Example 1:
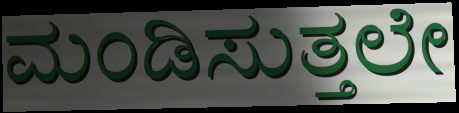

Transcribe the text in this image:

ಮಂಡಿಸುತ್ತಲೇ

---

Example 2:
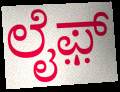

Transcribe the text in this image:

ಲೈಫ಼್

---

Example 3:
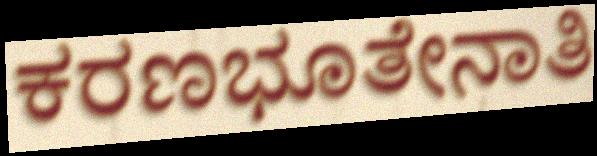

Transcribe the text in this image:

ಕರಣಭೂತೇನಾತಿ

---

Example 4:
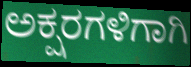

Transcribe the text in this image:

ಅಕ್ಷರಗಳಿಗಾಗಿ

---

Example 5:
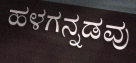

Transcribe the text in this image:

ಹಳಗನ್ನಡವು